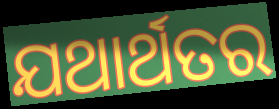
ଯଥାର୍ଥତର